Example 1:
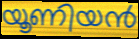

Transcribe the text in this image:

യൂണിയൻ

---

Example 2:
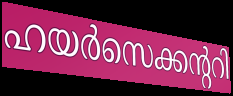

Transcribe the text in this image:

ഹയർസെക്കന്ററി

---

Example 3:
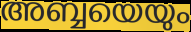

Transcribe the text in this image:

അബ്ബയെയും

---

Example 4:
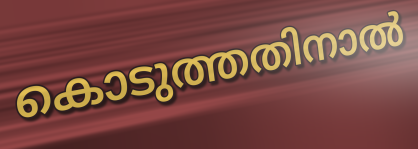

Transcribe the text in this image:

കൊടുത്തതിനാൽ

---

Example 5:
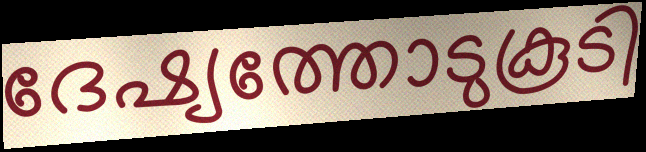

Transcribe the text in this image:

ദേഷ്യത്തോടുകൂടി